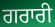
ਗਰਾਰੀ